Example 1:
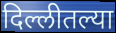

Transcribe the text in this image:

दिल्लीतल्या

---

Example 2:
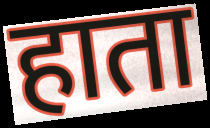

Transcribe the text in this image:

हाता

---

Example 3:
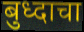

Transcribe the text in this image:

बुध्दाचा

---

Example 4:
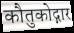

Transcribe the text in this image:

कौतुकोद्गार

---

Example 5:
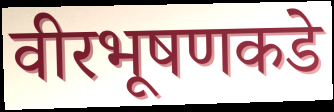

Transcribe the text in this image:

वीरभूषणकडे